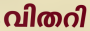
വിതറി